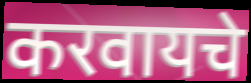
करवायचे